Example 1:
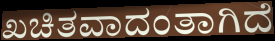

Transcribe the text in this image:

ಖಚಿತವಾದಂತಾಗಿದೆ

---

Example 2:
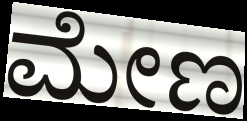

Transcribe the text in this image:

ಮೇಣ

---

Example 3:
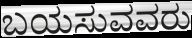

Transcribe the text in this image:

ಬಯಸುವವರು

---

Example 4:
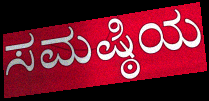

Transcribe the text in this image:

ಸಮಷ್ಠಿಯ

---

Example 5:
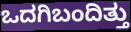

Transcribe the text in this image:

ಒದಗಿಬಂದಿತ್ತು